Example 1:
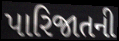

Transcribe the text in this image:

પારિજાતની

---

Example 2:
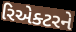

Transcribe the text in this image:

રિએક્ટરને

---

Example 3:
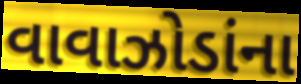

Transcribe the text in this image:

વાવાઝોડાંના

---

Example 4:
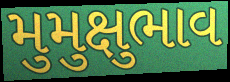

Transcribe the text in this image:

મુમુક્ષુભાવ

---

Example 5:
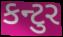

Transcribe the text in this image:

કન્ટુર